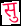
सु